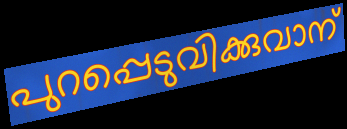
പുറപ്പെടുവിക്കുവാന്